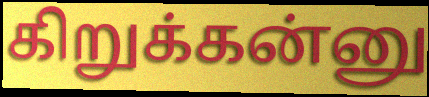
கிறுக்கன்னு